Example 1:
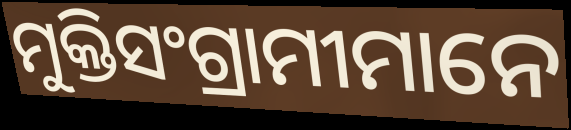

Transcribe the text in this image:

ମୁକ୍ତିସଂଗ୍ରାମୀମାନେ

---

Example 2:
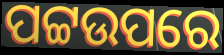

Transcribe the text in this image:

ପଟ୍ଟଉପରେ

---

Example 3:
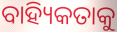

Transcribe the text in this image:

ବାହ୍ୟିକତାକୁ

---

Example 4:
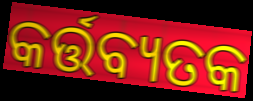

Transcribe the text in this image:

କର୍ତ୍ତବ୍ୟତକ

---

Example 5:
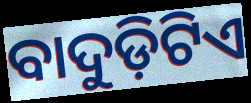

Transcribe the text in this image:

ବାଦୁଡ଼ିଟିଏ